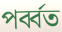
পর্ব্বত